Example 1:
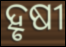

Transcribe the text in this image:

ହୃଷୀ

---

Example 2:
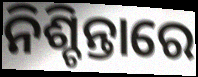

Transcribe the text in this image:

ନିଶ୍ଚିନ୍ତାରେ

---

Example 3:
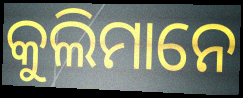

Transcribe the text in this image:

କୁଲିମାନେ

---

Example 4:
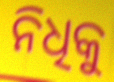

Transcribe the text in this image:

ନିଧିକୁ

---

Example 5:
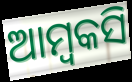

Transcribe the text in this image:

ଆମ୍ବକସି